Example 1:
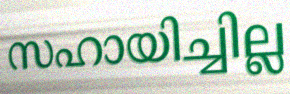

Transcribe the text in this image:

സഹായിച്ചില്ല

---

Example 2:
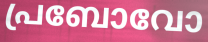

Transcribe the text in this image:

പ്രബോവോ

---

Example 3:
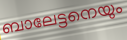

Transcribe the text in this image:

ബാലേട്ടനെയും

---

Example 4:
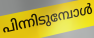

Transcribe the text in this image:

പിന്നിടുമ്പോൾ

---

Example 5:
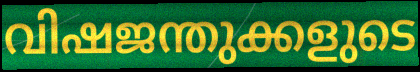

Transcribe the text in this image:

വിഷജന്തുക്കളുടെ